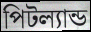
পিটল্যান্ড